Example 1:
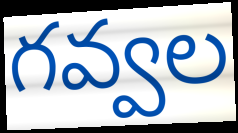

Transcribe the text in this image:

గవ్వల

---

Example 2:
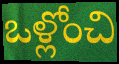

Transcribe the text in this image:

ఒళ్లోంచి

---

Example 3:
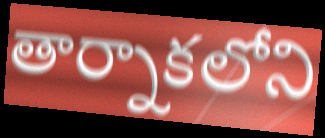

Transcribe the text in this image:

తార్నాకలోని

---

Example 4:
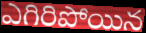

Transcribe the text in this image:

ఎగిరిపోయిన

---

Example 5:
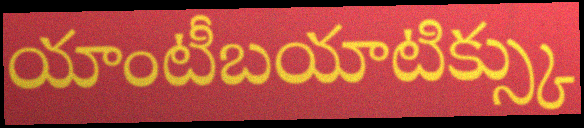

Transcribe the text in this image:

యాంటీబయాటిక్స్కు